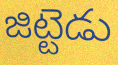
జిట్టెడు